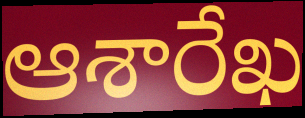
ఆశారేఖ